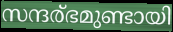
സന്ദര്ഭമുണ്ടായി